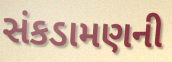
સંકડામણની